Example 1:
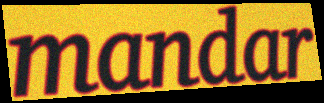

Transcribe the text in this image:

mandar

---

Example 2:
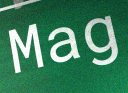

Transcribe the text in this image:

Mag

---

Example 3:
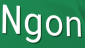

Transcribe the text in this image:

Ngon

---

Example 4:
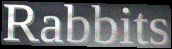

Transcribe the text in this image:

Rabbits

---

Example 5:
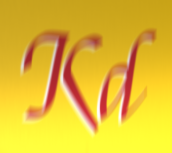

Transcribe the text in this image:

Kd